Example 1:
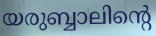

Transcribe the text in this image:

യരുബ്ബാലിന്റെ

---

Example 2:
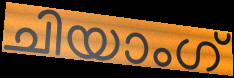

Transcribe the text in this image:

ചിയാംഗ്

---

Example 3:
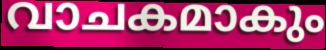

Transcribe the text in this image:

വാചകമാകും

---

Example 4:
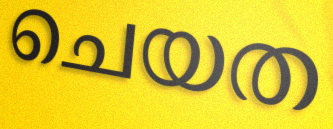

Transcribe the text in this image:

ചെയത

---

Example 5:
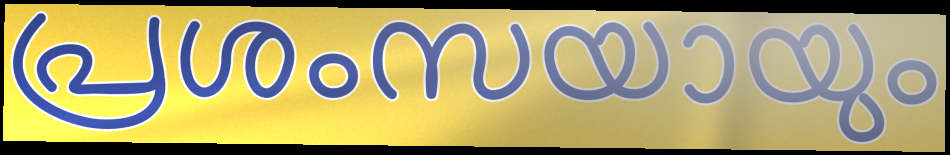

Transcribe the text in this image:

പ്രശംസയായും